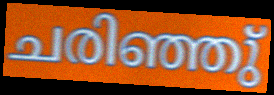
ചരിഞ്ഞു്